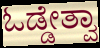
ಓಡ್ಡೇತ್ವಾ